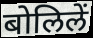
बोलिलें